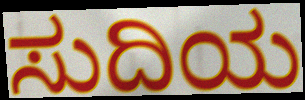
ಸುದಿಯ